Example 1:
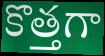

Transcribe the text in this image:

కొత్తగా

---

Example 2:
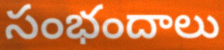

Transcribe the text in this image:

సంభందాలు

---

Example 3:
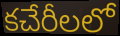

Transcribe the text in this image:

కచేరీలలో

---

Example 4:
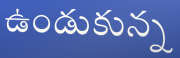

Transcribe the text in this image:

ఉండుకున్న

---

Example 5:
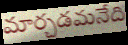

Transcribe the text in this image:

మార్చడమనేది